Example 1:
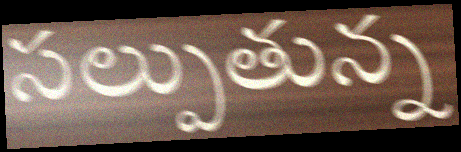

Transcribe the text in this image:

సల్పుతున్న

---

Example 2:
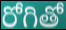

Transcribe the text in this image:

రోగితో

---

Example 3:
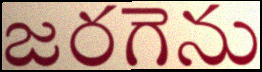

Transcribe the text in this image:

జరగెను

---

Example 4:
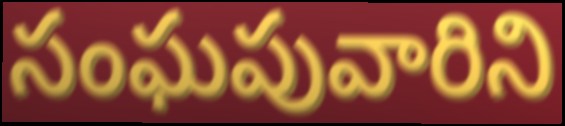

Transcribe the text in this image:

సంఘపువారిని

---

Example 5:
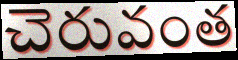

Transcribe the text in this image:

చెరువంత